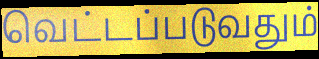
வெட்டப்படுவதும்